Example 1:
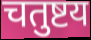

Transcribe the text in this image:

चतुष्टय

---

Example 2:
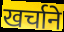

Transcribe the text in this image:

खर्चाने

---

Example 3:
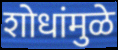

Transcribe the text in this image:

शोधांमुळे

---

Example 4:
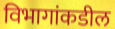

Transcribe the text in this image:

विभागांकडील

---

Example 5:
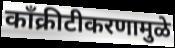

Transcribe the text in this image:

काँक्रीटीकरणामुळे